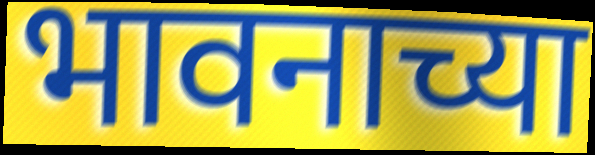
भावनाच्या